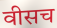
वीसच